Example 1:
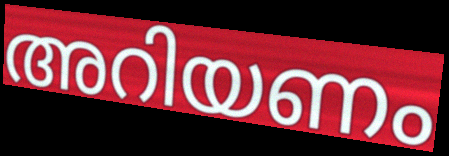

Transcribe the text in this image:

അറിയണം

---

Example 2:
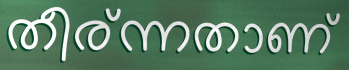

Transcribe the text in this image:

തീര്ന്നതാണ്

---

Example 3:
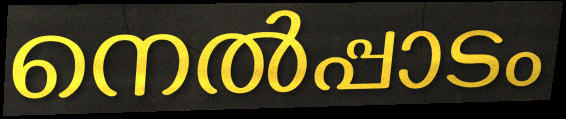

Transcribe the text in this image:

നെൽപ്പാടം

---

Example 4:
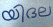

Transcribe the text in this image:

യിദല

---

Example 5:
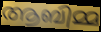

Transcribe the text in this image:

ആബിമ്മ